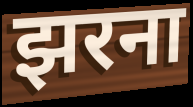
झरना